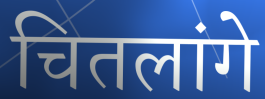
चितलांगे